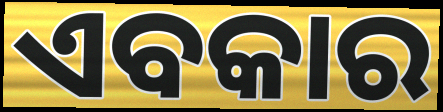
ଏବକାର